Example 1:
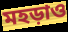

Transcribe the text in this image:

মহড়াও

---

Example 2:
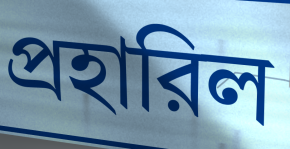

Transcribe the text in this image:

প্রহারিল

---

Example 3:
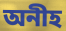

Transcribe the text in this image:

অনীহ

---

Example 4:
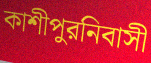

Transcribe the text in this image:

কাশীপুরনিবাসী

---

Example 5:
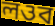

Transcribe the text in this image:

লওব